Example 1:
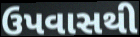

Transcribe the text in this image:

ઉપવાસથી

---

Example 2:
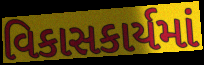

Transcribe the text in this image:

વિકાસકાર્યમાં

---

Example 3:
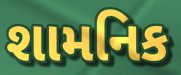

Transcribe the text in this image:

શામનિક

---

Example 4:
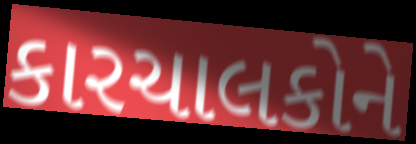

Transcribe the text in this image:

કારચાલકોને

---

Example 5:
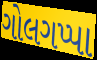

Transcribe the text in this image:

ગોલગપ્પા